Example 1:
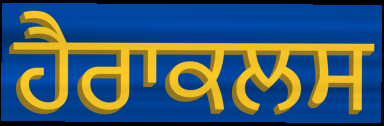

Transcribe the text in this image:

ਹੈਰਾਕਲਸ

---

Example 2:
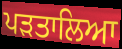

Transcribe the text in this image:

ਪੜਤਾਲਿਆ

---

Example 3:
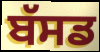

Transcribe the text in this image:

ਬੱਸਡ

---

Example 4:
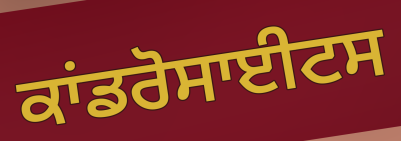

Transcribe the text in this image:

ਕਾਂਡਰੋਸਾਈਟਸ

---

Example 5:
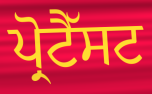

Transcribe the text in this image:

ਪ੍ਰੋਟੈੱਸਟ